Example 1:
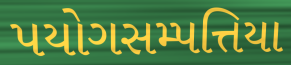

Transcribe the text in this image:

પયોગસમ્પત્તિયા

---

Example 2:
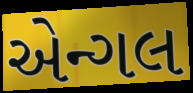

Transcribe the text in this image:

એન્ગલ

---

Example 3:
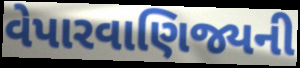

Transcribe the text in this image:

વેપારવાણિજ્યની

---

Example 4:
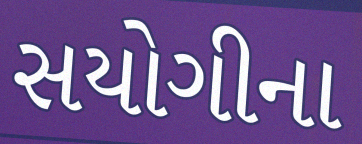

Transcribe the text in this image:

સયોગીના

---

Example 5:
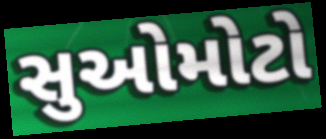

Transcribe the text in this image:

સુઓમોટો